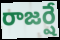
రాజర్షే